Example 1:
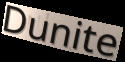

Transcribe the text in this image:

Dunite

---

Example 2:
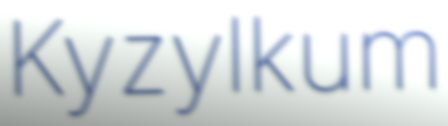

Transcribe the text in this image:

Kyzylkum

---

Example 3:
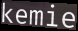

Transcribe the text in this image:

kemie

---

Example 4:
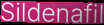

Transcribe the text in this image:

Sildenafil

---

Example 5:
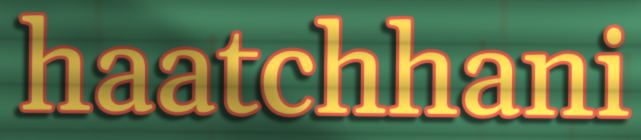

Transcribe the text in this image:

haatchhani